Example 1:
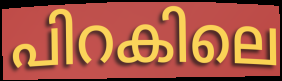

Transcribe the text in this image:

പിറകിലെ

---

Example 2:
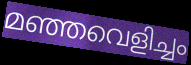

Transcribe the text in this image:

മഞ്ഞവെളിച്ചം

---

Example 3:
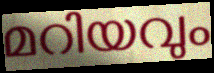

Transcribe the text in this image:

മറിയവും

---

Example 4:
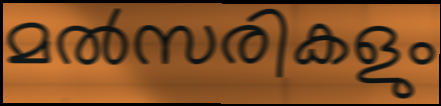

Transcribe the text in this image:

മൽസരികളും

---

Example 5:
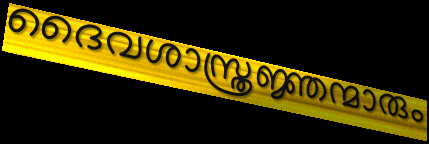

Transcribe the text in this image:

ദൈവശാസ്ത്രജ്ഞന്മാരും